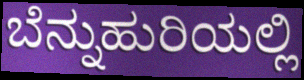
ಬೆನ್ನುಹುರಿಯಲ್ಲಿ